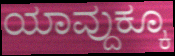
ಯಾವ್ದುಕ್ಕೂ